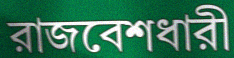
রাজবেশধারী